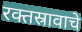
रक्तस्रावाचे